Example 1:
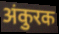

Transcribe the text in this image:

अंकुरक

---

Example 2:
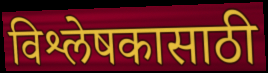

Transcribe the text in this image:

विश्लेषकासाठी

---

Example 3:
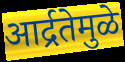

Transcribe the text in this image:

आर्द्रतेमुळे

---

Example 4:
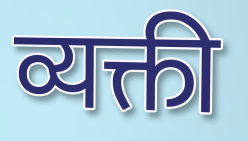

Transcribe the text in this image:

व्यक्ती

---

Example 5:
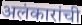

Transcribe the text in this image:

अलंकारांची